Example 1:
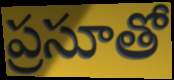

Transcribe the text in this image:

ప్రసూతో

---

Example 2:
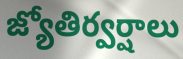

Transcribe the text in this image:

జ్యోతిర్వర్షాలు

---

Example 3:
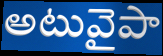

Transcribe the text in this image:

అటువైపా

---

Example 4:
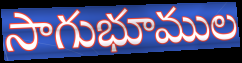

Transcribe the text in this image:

సాగుభూముల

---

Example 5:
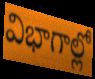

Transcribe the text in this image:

విభాగాల్లో